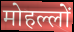
मोहल्लों